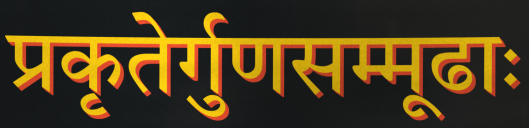
प्रकृतेर्गुणसम्मूढाः